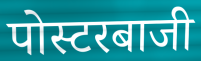
पोस्टरबाजी